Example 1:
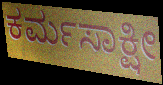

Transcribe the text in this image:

ಕರ್ಮಸಾಕ್ಷೀ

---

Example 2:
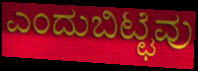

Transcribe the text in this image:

ಎಂದುಬಿಟ್ಟೆವು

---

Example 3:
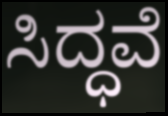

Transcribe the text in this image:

ಸಿದ್ಧವೆ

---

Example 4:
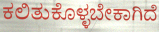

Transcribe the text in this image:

ಕಲಿತುಕೊಳ್ಳಬೇಕಾಗಿದೆ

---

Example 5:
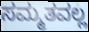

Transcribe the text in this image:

ಸಮ್ಮತವಲ್ಲ